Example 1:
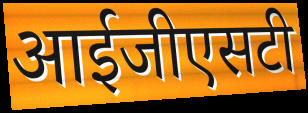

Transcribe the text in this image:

आईजीएसटी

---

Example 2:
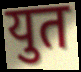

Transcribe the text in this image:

युत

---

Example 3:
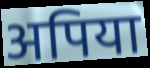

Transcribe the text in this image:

अपिया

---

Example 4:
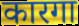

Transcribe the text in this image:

कारगा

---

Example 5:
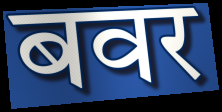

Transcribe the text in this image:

बवर